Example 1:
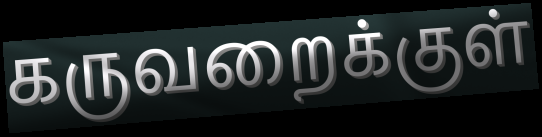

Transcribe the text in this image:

கருவறைக்குள்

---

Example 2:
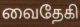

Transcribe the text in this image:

வைதேகி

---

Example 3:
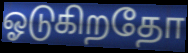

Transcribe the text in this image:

ஓடுகிறதோ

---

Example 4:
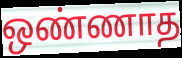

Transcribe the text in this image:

ஒண்ணாத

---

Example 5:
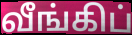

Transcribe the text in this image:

வீங்கிப்